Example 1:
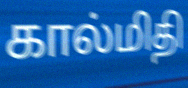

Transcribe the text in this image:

கால்மிதி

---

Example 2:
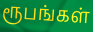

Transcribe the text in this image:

ரூபங்கள்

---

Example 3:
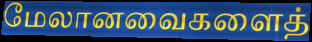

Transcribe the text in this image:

மேலானவைகளைத்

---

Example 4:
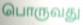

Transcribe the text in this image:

பொருவது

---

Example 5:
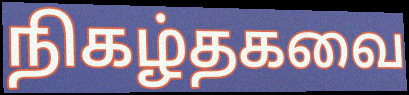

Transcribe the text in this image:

நிகழ்தகவை